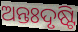
ଅନ୍ତଃଦୃଷ୍ଟି